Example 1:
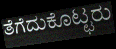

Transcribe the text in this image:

ತೆಗೆದುಕೊಟ್ಟರು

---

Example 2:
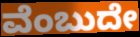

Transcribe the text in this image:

ವೆಂಬುದೇ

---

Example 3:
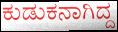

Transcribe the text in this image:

ಕುಡುಕನಾಗಿದ್ದ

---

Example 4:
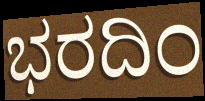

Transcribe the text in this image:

ಭರದಿಂ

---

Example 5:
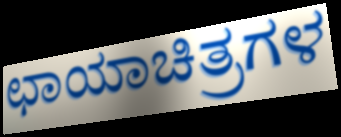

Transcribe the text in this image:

ಛಾಯಾಚಿತ್ರಗಳ